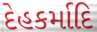
દેહકર્માદિ